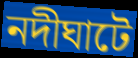
নদীঘাটে